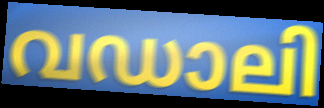
വഡാലി